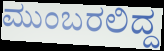
ಮುಂಬರಲಿದ್ದ